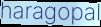
haragopal